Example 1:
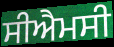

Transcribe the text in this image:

ਸੀਐਮਸੀ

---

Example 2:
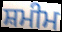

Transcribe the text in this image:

ਸ਼ਮੀਮ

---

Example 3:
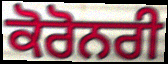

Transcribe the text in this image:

ਕੋਰੋਨਰੀ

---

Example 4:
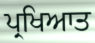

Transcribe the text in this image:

ਪ੍ਰਖਿਆਤ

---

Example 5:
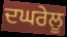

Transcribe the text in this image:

ਦਘਰੇਲੂ